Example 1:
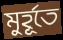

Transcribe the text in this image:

মুর্হূতে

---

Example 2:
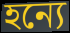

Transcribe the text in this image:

হন্যে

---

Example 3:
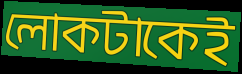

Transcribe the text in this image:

লোকটাকেই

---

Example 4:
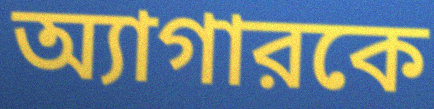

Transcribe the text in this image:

অ্যাগারকে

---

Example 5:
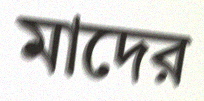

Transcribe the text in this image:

মাদের